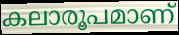
കലാരൂപമാണ്